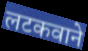
लटकवाने